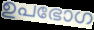
ഉപഭോഗ